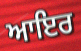
ਆਇਰ